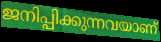
ജനിപ്പിക്കുന്നവയാണ്